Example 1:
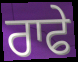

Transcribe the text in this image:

ਰਾਫੇ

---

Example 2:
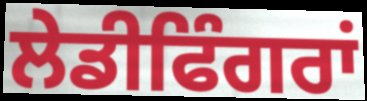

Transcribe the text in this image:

ਲੇਡੀਫਿੰਗਰਾਂ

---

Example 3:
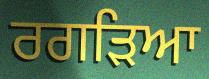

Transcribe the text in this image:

ਰਗੜਿਆ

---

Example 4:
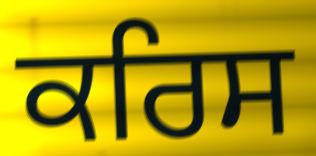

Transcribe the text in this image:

ਕਰਿਸ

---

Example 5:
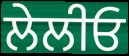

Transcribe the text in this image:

ਲੇਲੀਓ